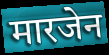
मारजेन